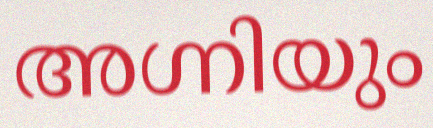
അഗ്നിയും